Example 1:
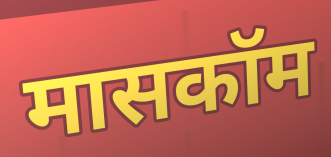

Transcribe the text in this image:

मासकॉम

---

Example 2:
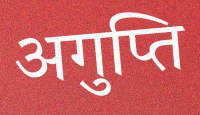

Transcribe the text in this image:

अगुप्ति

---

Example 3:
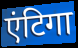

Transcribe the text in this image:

एंटिगा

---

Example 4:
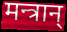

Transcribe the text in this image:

मन्त्रान्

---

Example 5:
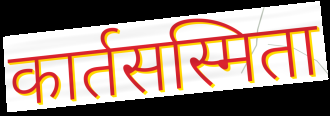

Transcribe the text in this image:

कार्तसस्मिता